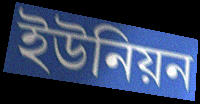
ইউনিয়ন